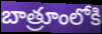
బాత్రూంలోకి